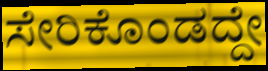
ಸೇರಿಕೊಂಡದ್ದೇ